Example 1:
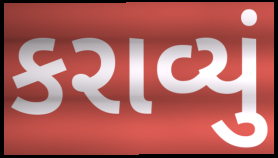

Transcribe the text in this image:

કરાવ્યું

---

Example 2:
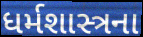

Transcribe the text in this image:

ધર્મશાસ્ત્રના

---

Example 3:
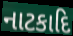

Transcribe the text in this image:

નાટકાદિ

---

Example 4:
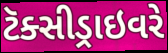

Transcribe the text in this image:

ટૅક્સીડ્રાઇવરે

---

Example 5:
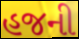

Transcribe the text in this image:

હજની